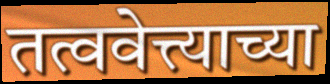
तत्ववेत्त्याच्या